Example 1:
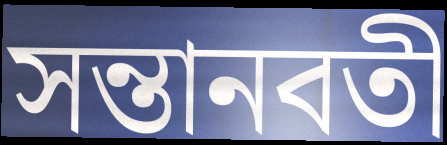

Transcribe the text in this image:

সন্তানবতী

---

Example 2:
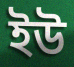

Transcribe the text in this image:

ইউ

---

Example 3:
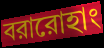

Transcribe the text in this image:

বরারোহাং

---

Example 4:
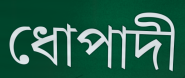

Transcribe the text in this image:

ধোপাদী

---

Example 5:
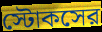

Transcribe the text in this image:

স্টোকসের